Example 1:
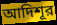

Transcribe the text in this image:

আদিশূর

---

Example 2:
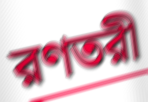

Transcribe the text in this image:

রণতরী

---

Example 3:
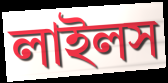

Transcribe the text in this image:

লাইলস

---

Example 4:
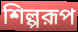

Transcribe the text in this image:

শিল্পরূপ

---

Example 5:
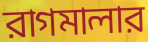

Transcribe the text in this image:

রাগমালার